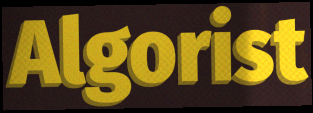
Algorist